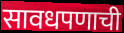
सावधपणाची